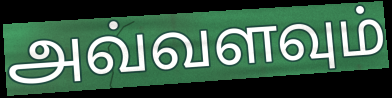
அவ்வளவும்